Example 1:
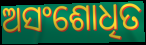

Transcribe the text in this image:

ଅସଂଶୋଧିତ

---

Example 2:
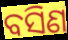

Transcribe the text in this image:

ବସିଣ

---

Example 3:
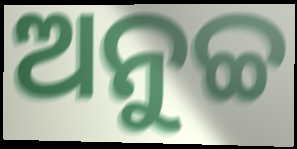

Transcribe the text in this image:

ଅନୁଚ୍ଚ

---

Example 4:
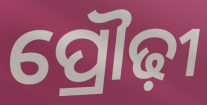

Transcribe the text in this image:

ପ୍ରୌଢ଼ୀ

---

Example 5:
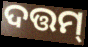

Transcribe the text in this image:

ଦତ୍ତମ୍